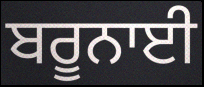
ਬਰੂਨਾਈ